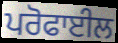
ਪਰੋਫਾਈਲ